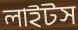
লাইটস